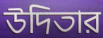
উদিতার